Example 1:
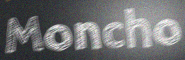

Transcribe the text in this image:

Moncho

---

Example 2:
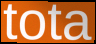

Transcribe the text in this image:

tota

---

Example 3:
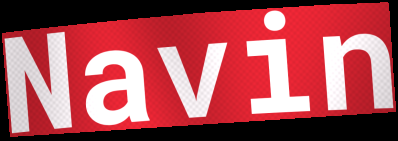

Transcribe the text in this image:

Navin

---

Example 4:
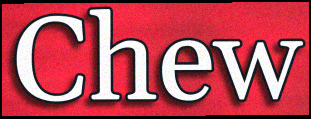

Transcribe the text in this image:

Chew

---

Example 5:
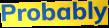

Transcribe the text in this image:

Probably